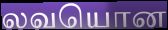
லவயொன